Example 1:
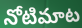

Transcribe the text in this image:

నోటిమాట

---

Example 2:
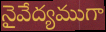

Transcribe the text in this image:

నైవేద్యముగా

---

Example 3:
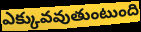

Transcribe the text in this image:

ఎక్కువవుతుంటుంది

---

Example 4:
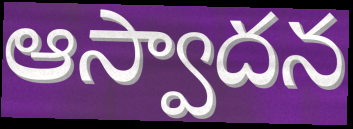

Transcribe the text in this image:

ఆస్వాదన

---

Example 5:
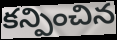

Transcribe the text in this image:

కన్పించిన